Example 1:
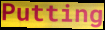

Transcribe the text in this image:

Putting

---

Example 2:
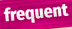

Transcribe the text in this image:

frequent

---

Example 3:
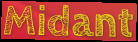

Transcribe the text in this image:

Midant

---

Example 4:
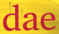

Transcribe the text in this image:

dae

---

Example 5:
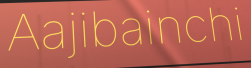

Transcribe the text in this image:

Aajibainchi